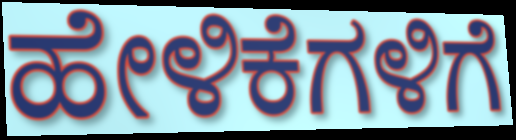
ಹೇಳಿಕೆಗಳಿಗೆ